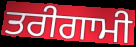
ਤਰੀਗਾਮੀ